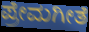
ಪ್ರೇಮಗೀತೆ